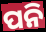
ପନି